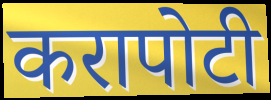
करापोटी